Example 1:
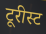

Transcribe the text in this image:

टूरीस्ट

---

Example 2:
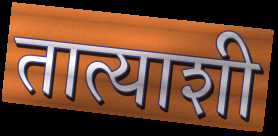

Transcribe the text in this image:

तात्याशी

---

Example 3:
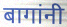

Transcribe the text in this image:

बागांनी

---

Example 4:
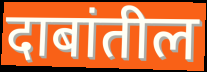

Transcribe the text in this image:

दाबांतील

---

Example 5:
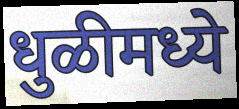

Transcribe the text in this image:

धुळीमध्ये